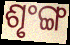
ଶୃଂଙ୍ଗ